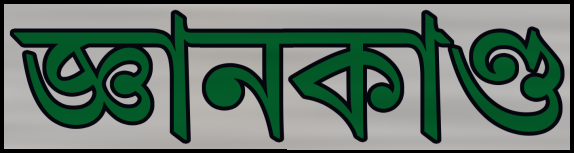
জ্ঞানকাণ্ড